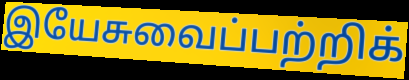
இயேசுவைப்பற்றிக்